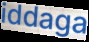
iddaga